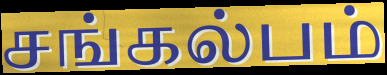
சங்கல்பம்